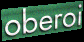
oberoi